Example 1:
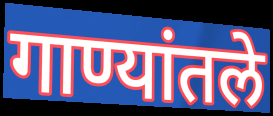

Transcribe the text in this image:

गाण्यांतले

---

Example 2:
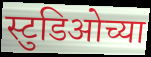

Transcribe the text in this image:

स्टुडिओच्या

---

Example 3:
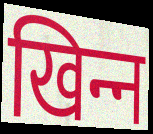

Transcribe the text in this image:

खिन्‍न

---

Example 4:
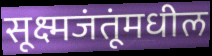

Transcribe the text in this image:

सूक्ष्मजंतूंमधील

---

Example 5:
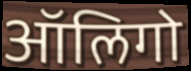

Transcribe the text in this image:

ऑलिगो